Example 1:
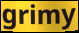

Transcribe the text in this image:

grimy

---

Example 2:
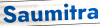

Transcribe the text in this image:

Saumitra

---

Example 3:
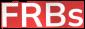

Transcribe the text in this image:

FRBs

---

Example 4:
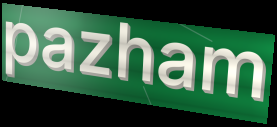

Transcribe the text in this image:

pazham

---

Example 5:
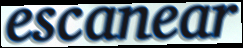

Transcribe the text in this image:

escanear